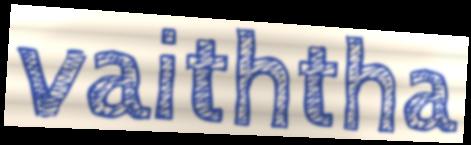
vaiththa